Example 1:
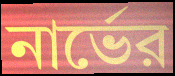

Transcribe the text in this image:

নার্ভের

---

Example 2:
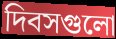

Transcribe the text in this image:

দিবসগুলো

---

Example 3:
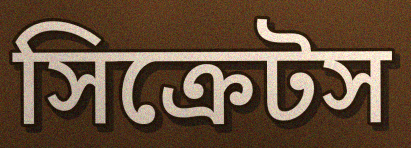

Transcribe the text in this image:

সিক্রেটস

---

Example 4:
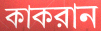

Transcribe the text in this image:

কাকরান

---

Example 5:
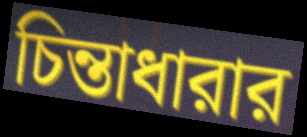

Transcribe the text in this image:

চিন্তাধারার